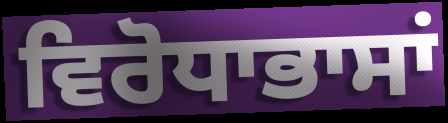
ਵਿਰੋਧਾਭਾਸਾਂ